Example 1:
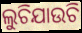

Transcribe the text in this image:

ଲୁଚିଯାଉଚି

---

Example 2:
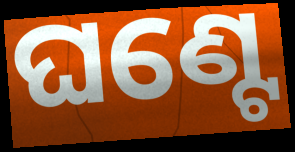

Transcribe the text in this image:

ଘଣ୍ଟେ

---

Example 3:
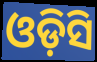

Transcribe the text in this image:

ଓଡ଼ିସି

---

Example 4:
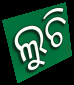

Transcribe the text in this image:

ଲୁଚି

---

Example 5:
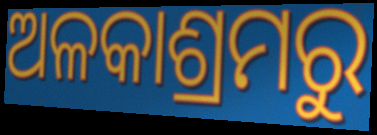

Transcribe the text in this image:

ଅଳକାଶ୍ରମରୁ